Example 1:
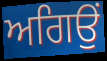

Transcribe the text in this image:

ਅਗਿਉਂ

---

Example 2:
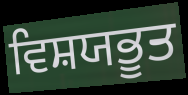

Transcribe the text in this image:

ਵਿਸ਼ਯਭੂਤ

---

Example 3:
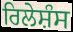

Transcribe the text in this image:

ਰਿਲੇਸ਼ੰਸ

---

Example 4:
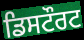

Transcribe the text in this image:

ਡਿਸਟੌਰਟ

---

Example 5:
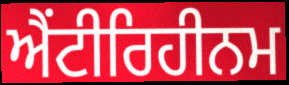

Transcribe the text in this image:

ਐਂਟੀਰਿਹੀਨਮ